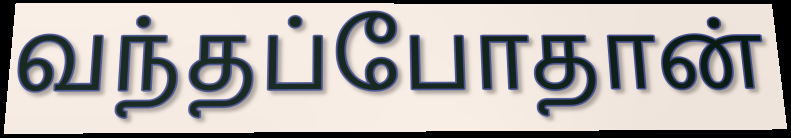
வந்தப்போதான்